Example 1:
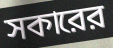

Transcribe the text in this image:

সকারের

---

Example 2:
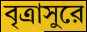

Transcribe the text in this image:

বৃত্রাসুরে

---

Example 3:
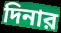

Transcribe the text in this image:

দিনার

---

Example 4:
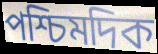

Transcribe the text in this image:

পশ্চিমদিক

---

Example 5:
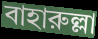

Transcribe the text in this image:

বাহারুল্লা